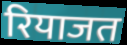
रियाजत